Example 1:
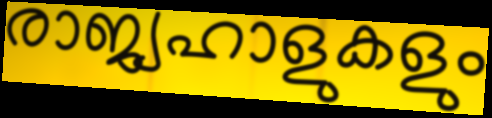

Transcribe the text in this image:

രാജ്യഹാളുകളും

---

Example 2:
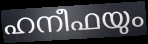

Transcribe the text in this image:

ഹനീഫയും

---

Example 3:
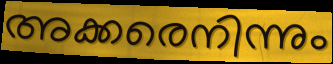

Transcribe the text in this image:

അക്കരെനിന്നും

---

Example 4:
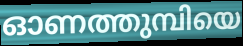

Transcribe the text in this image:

ഓണത്തുമ്പിയെ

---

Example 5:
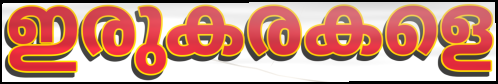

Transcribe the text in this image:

ഇരുകരകളെ